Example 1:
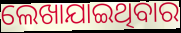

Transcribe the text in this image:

ଲେଖାଯାଇଥିବାର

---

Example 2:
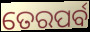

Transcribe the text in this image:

ତେରପର୍ବ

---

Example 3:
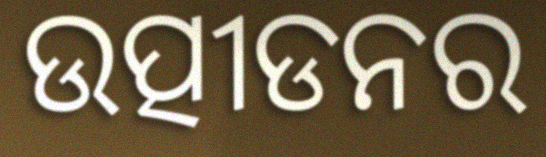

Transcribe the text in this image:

ଉତ୍ପୀଡନର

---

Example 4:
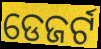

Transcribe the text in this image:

ଡେଜର୍ଟ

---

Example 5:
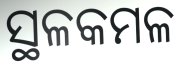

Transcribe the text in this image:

ସ୍ଥଳକମଳ